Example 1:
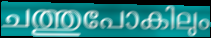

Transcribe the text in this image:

ചത്തുപോകിലും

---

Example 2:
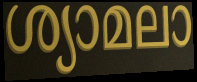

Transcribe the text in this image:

ശ്യാമലാ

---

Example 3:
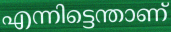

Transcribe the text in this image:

എന്നിട്ടെന്താണ്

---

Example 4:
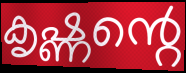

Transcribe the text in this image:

കൃഷ്ണന്റെ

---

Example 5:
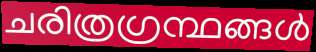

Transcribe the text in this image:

ചരിത്രഗ്രന്ഥങ്ങൾ